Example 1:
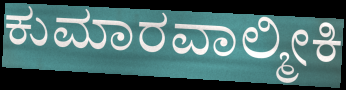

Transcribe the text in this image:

ಕುಮಾರವಾಲ್ಮೀಕಿ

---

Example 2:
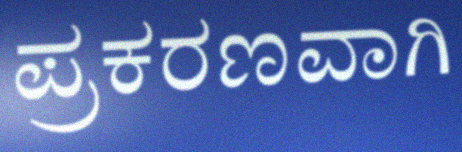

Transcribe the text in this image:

ಪ್ರಕರಣವಾಗಿ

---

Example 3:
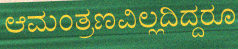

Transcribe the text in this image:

ಆಮಂತ್ರಣವಿಲ್ಲದಿದ್ದರೂ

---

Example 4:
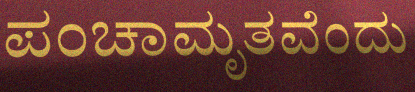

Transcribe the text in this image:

ಪಂಚಾಮೃತವೆಂದು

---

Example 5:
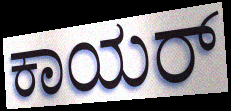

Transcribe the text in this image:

ಕಾಯರ್